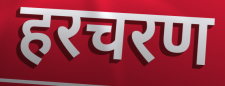
हरचरण